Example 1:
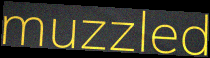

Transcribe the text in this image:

muzzled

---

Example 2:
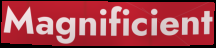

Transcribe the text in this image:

Magnificient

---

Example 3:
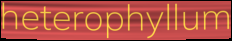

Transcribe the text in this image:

heterophyllum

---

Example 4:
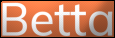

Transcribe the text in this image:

Betta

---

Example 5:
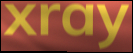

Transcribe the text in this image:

xray